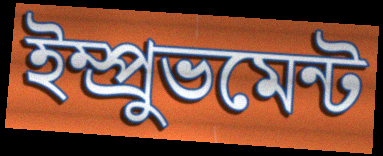
ইম্প্রুভমেন্ট